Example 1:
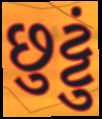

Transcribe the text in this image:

છુટ્ટું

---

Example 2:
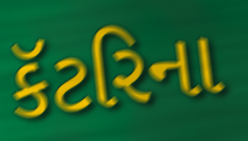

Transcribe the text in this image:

કૅટરિના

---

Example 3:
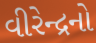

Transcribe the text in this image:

વીરેન્દ્રનો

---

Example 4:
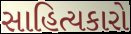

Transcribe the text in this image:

સાહિત્યકારો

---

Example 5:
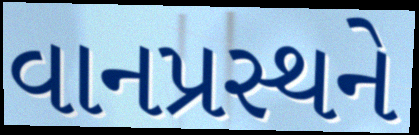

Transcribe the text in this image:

વાનપ્રસ્થને